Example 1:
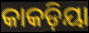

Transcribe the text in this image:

କାକଡ଼ିୟା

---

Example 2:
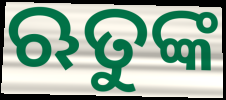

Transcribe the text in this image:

ଋତୁଙ୍କ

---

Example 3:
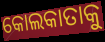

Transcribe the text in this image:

କୋଲକାତାକୁ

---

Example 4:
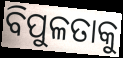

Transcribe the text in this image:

ବିପୁଳତାକୁ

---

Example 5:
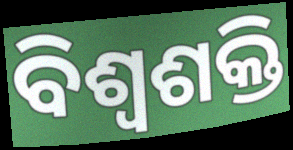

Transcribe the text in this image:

ବିଶ୍ଵଶକ୍ତି